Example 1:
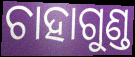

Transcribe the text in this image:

ଚାହାଗୁଣ୍ଡ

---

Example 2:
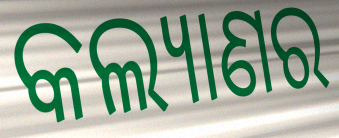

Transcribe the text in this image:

କଲ୍ୟାଣର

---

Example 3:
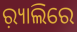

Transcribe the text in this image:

ର଼୍ୟାଲିରେ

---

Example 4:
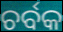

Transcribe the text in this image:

ଚର୍ବକ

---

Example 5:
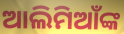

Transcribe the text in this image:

ଆଲିମିଆଁଙ୍କ